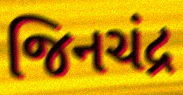
જિનચંદ્ર